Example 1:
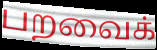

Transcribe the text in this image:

பறவைக்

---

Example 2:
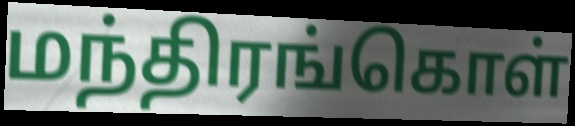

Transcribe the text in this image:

மந்திரங்கொள்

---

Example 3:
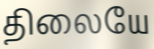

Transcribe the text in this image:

திலையே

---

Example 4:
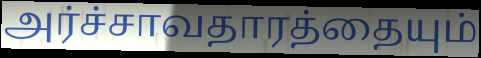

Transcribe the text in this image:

அர்ச்சாவதாரத்தையும்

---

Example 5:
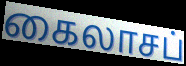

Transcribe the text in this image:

கைலாசப்